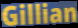
Gillian